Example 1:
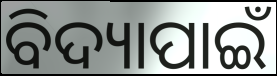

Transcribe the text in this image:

ବିଦ୍ୟାପାଇଁ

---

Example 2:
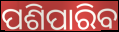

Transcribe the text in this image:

ପଶିପାରିବ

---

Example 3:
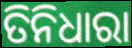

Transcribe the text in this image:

ତିନିଧାରା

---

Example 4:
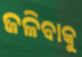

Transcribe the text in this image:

ଜଳିବାକୁ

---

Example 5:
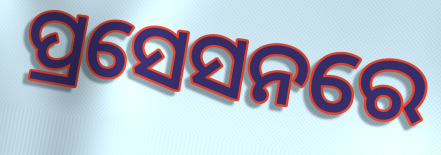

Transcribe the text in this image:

ପ୍ରସେସନରେ